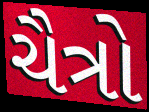
ચૈત્રો